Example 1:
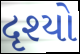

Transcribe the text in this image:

દૃશ્યો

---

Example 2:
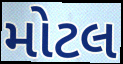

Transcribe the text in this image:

મોટલ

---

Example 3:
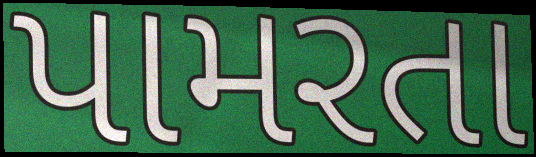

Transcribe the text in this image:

પામરતા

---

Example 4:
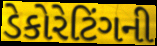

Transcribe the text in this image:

ડેકોરેટિંગની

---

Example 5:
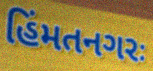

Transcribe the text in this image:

હિંમતનગરઃ